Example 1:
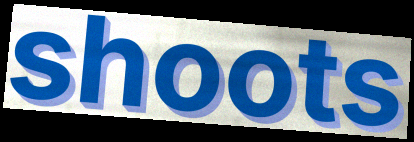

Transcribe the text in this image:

shoots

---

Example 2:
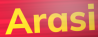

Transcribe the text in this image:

Arasi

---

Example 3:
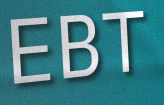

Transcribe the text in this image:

EBT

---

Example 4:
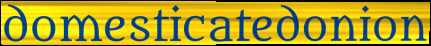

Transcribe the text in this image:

domesticatedonion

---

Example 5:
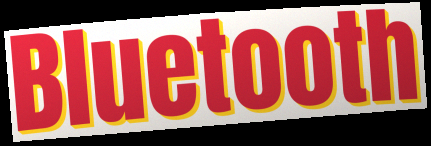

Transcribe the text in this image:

Bluetooth